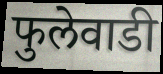
फुलेवाडी